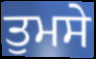
ਤੁਮਸੇ